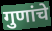
गुणांचे